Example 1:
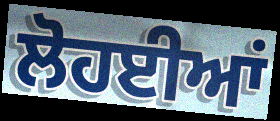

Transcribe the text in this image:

ਲੋਹਈਆਂ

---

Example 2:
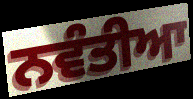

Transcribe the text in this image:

ਨਵੰਤੀਆ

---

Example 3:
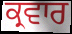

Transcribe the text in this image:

ਕ੍ਰਵਾਰ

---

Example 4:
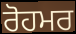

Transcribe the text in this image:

ਰੋਹਮਰ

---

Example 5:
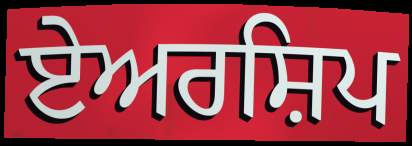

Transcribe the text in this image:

ਏਅਰਸ਼ਿਪ